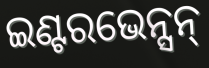
ଇଣ୍ଟରଭେନ୍ସନ୍